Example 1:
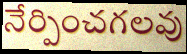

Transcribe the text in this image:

నేర్పించగలవు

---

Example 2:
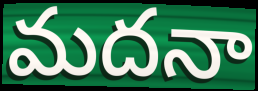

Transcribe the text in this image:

మదనా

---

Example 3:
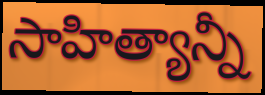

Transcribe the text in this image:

సాహిత్యాన్నీ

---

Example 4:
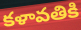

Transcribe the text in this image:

కళావతికి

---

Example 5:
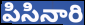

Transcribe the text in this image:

పిసినారి